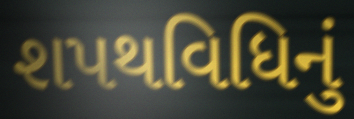
શપથવિધિનું